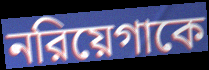
নরিয়েগাকে